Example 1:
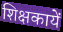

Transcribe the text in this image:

शिक्षकायें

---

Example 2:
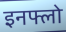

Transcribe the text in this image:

इनफ्लो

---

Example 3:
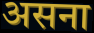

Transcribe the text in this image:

असना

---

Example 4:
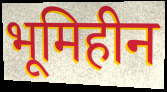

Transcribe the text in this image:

भूमिहीन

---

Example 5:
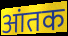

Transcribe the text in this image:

आंतक